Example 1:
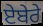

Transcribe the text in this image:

ਏਬੇਰੇ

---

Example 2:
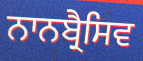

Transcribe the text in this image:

ਨਾਨਬ੍ਰੈਸਿਵ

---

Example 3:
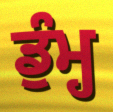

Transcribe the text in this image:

ਡੁੰਮ੍ਹ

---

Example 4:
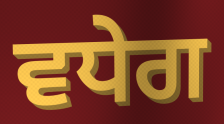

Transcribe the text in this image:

ਵਧੇਗ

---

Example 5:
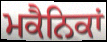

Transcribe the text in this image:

ਮਕੈਨਿਕਾਂ